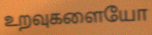
உறவுகளையோ